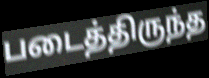
படைத்திருந்த